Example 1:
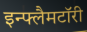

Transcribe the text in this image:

इन्फ्लैमटॉरी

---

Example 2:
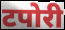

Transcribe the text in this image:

टपोरी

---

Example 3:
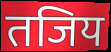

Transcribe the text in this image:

तजिय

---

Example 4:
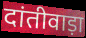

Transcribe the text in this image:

दांतीवाड़ा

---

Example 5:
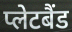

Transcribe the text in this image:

प्लेटबैंड